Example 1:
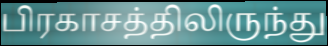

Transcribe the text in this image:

பிரகாசத்திலிருந்து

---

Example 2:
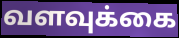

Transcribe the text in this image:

வளவுக்கை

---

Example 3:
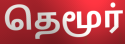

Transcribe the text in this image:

தெமூர்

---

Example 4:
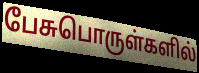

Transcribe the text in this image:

பேசுபொருள்களில்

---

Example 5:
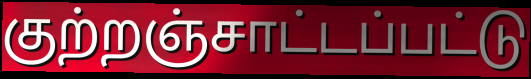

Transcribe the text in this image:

குற்றஞ்சாட்டப்பட்டு